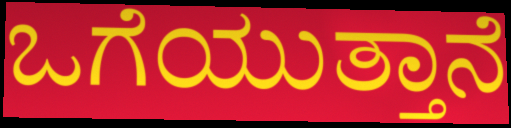
ಒಗೆಯುತ್ತಾನೆ